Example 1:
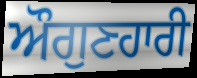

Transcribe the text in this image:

ਔਗੁਣਹਾਰੀ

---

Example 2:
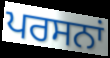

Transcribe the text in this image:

ਪਰਸਨਾਂ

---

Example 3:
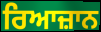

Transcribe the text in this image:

ਰਿਆਜ਼ਾਨ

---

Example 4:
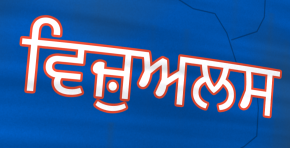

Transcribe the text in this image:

ਵਿਜ਼ੁਅਲਸ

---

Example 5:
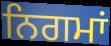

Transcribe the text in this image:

ਨਿਗਮਾਂ